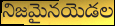
నిజమైనయెడల